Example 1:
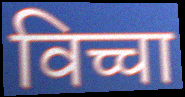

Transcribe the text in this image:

विच्चा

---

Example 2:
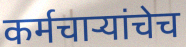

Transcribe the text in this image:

कर्मचाऱ्यांचेच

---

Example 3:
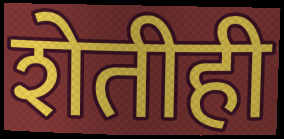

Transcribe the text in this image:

शेतीही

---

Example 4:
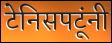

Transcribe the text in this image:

टेनिसपटूंनी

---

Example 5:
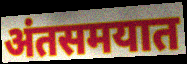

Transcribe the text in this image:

अंतसमयात